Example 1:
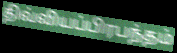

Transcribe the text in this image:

திவ்வியப்பிரபந்தம்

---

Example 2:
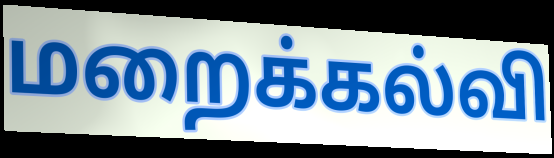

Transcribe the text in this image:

மறைக்கல்வி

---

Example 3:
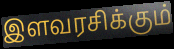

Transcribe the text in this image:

இளவரசிக்கும்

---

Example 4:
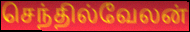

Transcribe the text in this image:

செந்தில்வேலன்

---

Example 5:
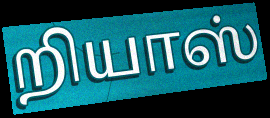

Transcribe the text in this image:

றியாஸ்